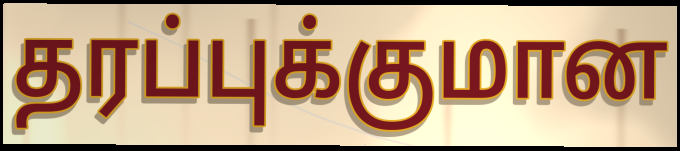
தரப்புக்குமான